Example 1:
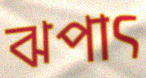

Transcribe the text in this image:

ঝপাৎ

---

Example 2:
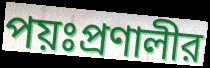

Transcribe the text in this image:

পয়ঃপ্রণালীর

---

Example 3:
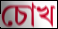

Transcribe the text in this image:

চোখ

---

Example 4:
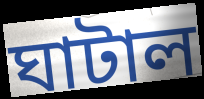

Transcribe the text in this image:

ঘাটাল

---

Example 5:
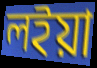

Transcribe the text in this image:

লইয়া